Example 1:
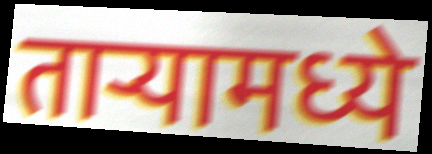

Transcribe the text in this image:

ताऱ्यामध्ये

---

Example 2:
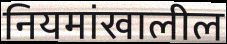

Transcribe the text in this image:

नियमांखालील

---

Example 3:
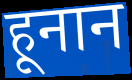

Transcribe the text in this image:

हूनान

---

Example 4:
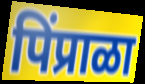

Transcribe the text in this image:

पिंप्राळा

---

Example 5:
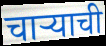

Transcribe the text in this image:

चाऱ्याची